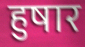
हुषार